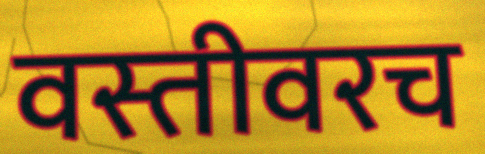
वस्तीवरच